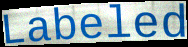
Labeled